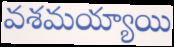
వశమయ్యాయి